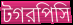
টগরপিসি